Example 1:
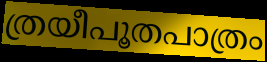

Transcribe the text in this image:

ത്രയീപൂതപാത്രം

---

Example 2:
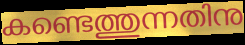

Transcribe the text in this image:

കണ്ടെത്തുന്നതിനു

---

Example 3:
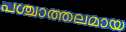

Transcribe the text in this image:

പശ്ചാത്തലമായ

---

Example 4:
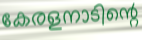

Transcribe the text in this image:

കേരളനാടിന്റെ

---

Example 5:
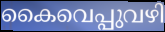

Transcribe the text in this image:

കൈവെപ്പുവഴി